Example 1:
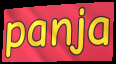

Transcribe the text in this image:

panja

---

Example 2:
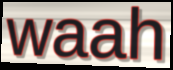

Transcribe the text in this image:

waah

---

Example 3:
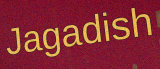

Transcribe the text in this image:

Jagadish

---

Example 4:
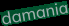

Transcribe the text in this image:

damania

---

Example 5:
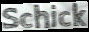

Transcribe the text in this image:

Schick